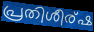
പ്രതിശീര്ഷ